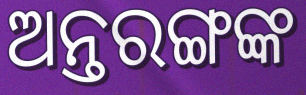
ଅନ୍ତରଙ୍ଗଙ୍କ